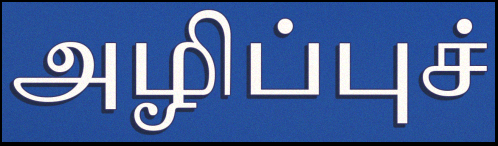
அழிப்புச்